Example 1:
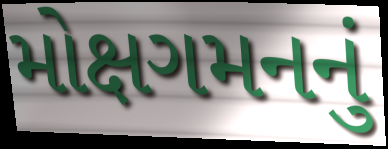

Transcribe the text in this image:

મોક્ષગમનનું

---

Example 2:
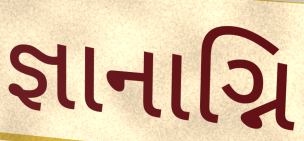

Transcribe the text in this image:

જ્ઞાનાગ્નિ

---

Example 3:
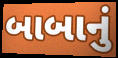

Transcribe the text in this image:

બાબાનું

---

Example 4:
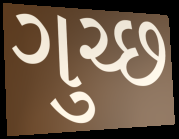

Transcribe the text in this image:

ગુચ્છ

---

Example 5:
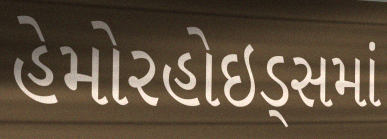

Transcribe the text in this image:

હેમોરહોઇડ્સમાં